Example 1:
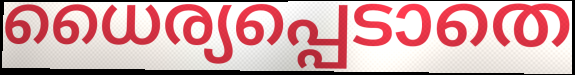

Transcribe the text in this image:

ധൈര്യപ്പെടാതെ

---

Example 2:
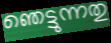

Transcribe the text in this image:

ഞെട്ടുന്നതു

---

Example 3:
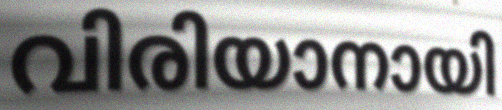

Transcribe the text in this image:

വിരിയാനായി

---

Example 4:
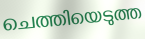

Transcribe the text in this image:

ചെത്തിയെടുത്ത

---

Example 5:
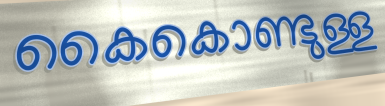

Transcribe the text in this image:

കൈകൊണ്ടുള്ള